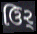
ઉિર્